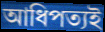
আধিপত্যই